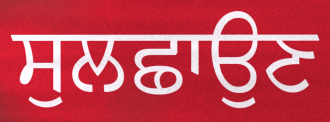
ਸੁਲਛਾਉਣ